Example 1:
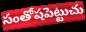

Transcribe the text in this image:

సంతోషపెట్టుచు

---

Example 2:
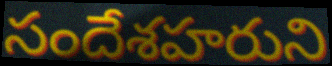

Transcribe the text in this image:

సందేశహరుని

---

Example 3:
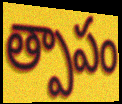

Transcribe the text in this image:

త్పాపం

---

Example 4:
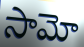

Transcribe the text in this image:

సామో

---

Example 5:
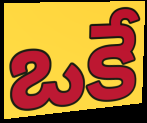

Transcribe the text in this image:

ఒకే